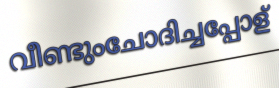
വീണ്ടുംചോദിച്ചപ്പോള്